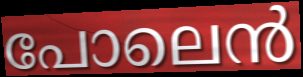
പോലെൻ